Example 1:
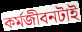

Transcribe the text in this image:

কর্মজীবনটাই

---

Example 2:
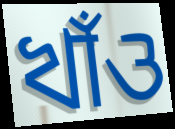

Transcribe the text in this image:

খাঁও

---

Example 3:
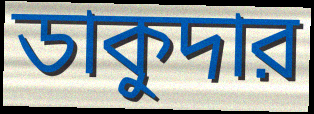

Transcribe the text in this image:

ডাকুদার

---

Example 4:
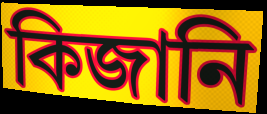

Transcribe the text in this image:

কিজানি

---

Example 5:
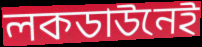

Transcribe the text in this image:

লকডাউনেই